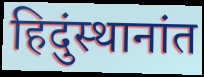
हिदुंस्थानांत